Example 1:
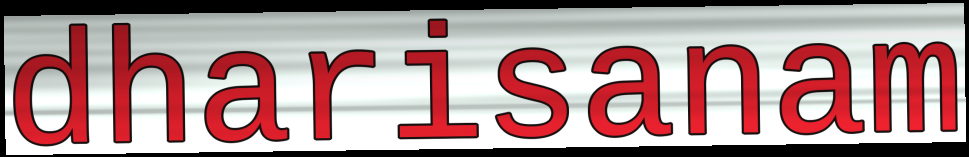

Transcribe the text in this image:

dharisanam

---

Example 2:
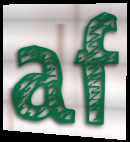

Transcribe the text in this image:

af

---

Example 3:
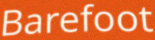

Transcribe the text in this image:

Barefoot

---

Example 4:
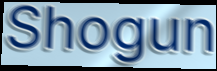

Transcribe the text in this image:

Shogun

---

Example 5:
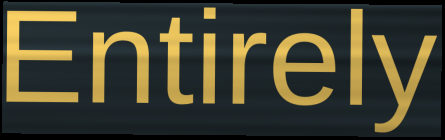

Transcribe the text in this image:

Entirely